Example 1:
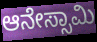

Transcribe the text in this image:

ಆನೇಸ್ಸಾಮಿ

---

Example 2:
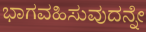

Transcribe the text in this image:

ಭಾಗವಹಿಸುವುದನ್ನೇ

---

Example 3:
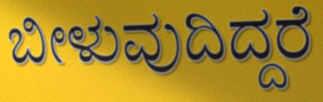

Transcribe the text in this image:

ಬೀಳುವುದಿದ್ದರೆ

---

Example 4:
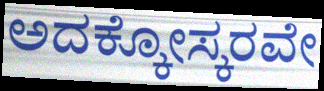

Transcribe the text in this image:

ಅದಕ್ಕೋಸ್ಕರವೇ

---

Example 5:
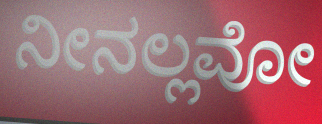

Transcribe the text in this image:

ನೀನಲ್ಲವೋ